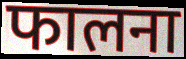
फालना